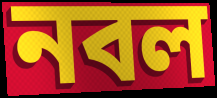
নবল